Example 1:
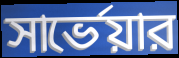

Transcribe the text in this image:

সার্ভেয়ার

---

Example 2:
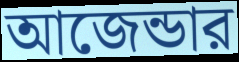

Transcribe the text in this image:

আজেন্ডার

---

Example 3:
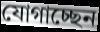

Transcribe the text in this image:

যোগাচ্ছেন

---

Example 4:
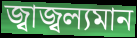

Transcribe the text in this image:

জ্বাজ্বল্যমান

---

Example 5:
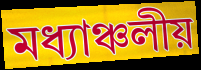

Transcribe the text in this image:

মধ্যাঞ্চলীয়